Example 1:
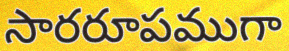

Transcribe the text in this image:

సారరూపముగా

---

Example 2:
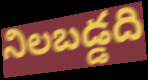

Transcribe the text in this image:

నిలబడ్డది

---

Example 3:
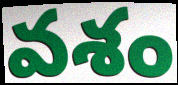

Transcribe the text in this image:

వశం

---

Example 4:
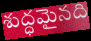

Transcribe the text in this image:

శుద్ధమైనది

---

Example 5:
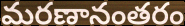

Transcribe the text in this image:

మరణానంతరం